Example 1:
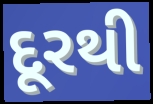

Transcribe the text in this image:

દૂરથી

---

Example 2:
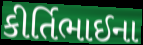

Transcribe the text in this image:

કીર્તિભાઈના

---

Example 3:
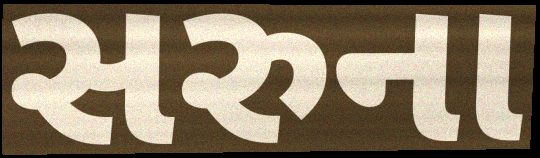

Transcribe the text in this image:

સરુના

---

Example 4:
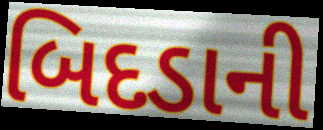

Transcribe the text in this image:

બિદડાની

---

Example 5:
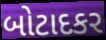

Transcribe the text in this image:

બોટાદકર